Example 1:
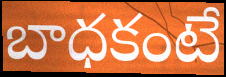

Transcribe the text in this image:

బాధకంటే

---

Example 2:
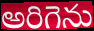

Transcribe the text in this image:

అరిగెను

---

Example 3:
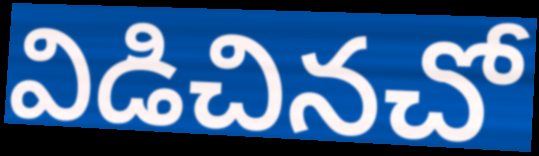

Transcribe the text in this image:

విడిచినచో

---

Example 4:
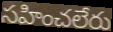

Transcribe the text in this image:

సహించలేరు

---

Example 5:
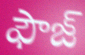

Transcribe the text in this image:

ఫౌజ్